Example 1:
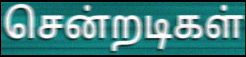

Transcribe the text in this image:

சென்றடிகள்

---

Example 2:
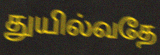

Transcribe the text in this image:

துயில்வதே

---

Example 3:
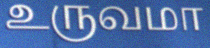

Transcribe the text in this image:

உருவமா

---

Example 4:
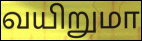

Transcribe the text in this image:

வயிறுமா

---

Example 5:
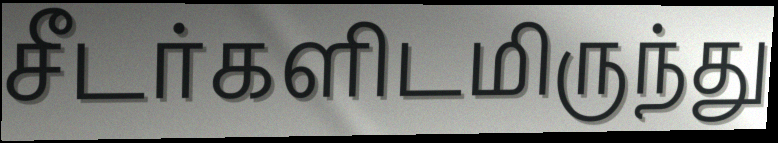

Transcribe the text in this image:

சீடர்களிடமிருந்து